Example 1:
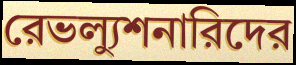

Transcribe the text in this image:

রেভল্যুশনারিদের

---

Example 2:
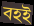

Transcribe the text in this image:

বহই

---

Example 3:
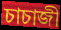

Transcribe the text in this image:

চাচাজী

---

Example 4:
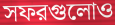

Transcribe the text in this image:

সফরগুলোও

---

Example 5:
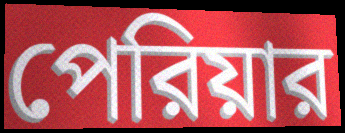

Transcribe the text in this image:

পেরিয়ার